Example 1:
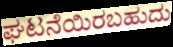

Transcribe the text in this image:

ಘಟನೆಯಿರಬಹುದು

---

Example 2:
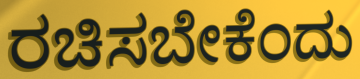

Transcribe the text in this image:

ರಚಿಸಬೇಕೆಂದು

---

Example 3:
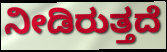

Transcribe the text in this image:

ನೀಡಿರುತ್ತದೆ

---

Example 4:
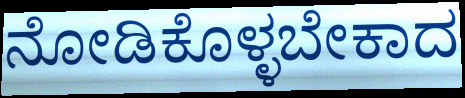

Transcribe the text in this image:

ನೋಡಿಕೊಳ್ಳಬೇಕಾದ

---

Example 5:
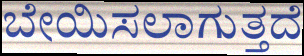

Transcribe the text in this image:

ಬೇಯಿಸಲಾಗುತ್ತದೆ